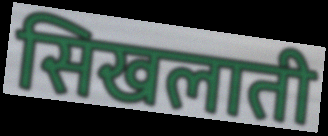
सिखलाती